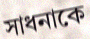
সাধনাকে